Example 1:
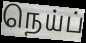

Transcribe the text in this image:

நெய்ப்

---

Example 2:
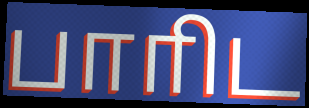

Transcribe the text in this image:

பாரிட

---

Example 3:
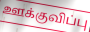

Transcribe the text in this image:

ஊக்குவிப்பு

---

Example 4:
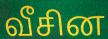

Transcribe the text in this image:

வீசின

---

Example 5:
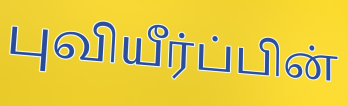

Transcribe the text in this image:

புவியீர்ப்பின்